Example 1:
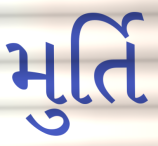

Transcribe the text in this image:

મુર્તિ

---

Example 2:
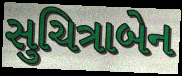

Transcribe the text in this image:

સુચિત્રાબેન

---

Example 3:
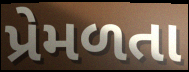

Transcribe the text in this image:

પ્રેમળતા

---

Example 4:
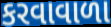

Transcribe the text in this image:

કરવાવાળા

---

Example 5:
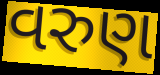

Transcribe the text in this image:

વરુણ